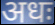
अधः